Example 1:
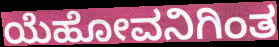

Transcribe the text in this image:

ಯೆಹೋವನಿಗಿಂತ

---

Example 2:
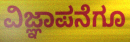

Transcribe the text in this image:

ವಿಜ್ಞಾಪನೆಗೂ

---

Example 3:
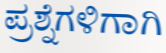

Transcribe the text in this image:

ಪ್ರಶ್ನೆಗಳಿಗಾಗಿ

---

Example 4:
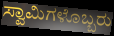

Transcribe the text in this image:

ಸ್ವಾಮಿಗಳೊಬ್ಬರು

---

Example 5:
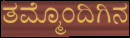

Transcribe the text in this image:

ತಮ್ಮೊಂದಿಗಿನ